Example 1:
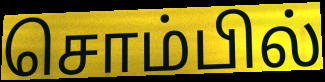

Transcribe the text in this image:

சொம்பில்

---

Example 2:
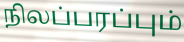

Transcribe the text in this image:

நிலப்பரப்பும்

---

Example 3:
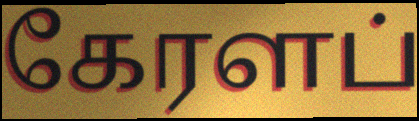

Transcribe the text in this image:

கேரளப்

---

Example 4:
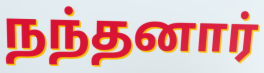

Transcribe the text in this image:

நந்தனார்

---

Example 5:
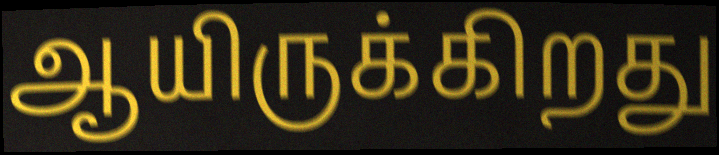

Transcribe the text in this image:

ஆயிருக்கிறது